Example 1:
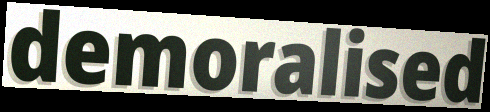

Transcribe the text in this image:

demoralised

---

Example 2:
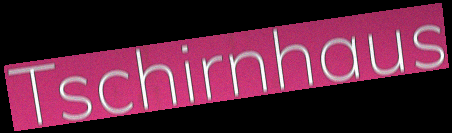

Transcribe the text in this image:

Tschirnhaus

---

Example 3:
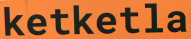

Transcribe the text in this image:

ketketla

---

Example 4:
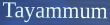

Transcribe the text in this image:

Tayammum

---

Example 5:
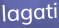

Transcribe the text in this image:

lagati